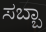
ಸಬ್ಬಾ